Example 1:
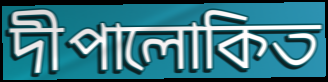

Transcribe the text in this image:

দীপালোকিত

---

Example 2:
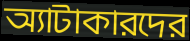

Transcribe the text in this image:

অ্যাটাকারদের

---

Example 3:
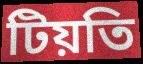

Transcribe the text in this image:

টিয়তি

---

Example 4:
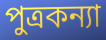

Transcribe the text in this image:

পুত্রকন্যা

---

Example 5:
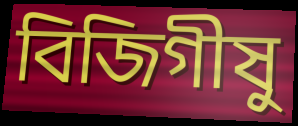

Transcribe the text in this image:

বিজিগীষু